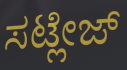
ಸಟ್ಲೇಜ್